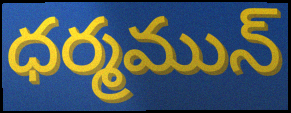
ధర్మమున్